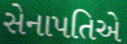
સેનાપતિએ